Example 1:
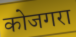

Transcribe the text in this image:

कोजगरा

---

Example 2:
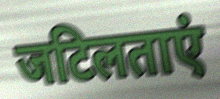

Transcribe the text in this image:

जटिलताएं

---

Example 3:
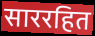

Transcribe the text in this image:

साररहित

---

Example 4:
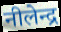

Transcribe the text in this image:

नीलेन्द्र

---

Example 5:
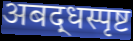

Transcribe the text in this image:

अबद्धस्पृष्ट